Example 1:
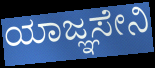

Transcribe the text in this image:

ಯಾಜ್ಞಸೇನಿ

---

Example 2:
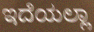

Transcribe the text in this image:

ಇದೆಯಲ್ಲಾ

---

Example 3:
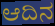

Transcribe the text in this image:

ಆದಿನ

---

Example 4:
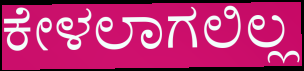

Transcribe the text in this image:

ಕೇಳಲಾಗಲಿಲ್ಲ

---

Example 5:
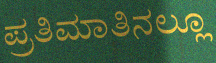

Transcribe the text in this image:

ಪ್ರತಿಮಾತಿನಲ್ಲೂ